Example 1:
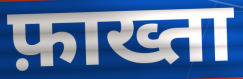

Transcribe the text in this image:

फ़ाख्ता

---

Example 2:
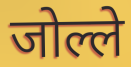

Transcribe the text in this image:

जोल्ले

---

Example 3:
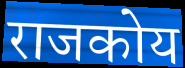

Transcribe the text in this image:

राजकोय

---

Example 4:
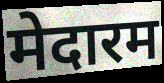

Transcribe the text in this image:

मेदारम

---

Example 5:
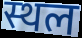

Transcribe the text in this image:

स्थल